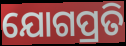
ଯୋଗପ୍ରତି